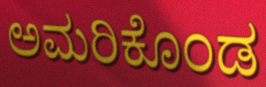
ಅಮರಿಕೊಂಡ